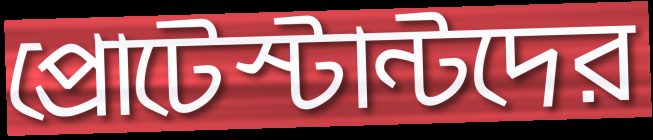
প্রোটেস্টান্টদের